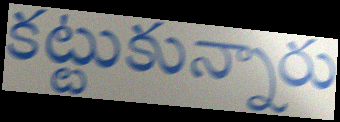
కట్టుకున్నారు